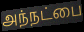
அந்நட்பை